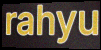
rahyu